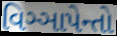
વિઞ્ઞાપેન્તો